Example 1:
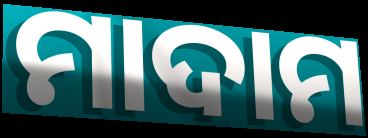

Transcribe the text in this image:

ମାଦାମ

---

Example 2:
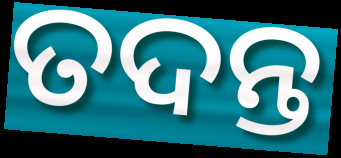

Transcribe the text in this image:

ତଦନ୍ତ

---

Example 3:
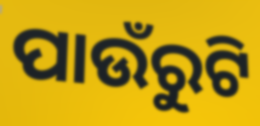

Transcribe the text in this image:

ପାଉଁରୁଟି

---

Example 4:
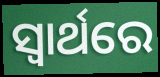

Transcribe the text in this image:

ସ୍ଵାର୍ଥରେ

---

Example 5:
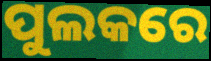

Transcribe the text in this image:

ପୁଲକରେ